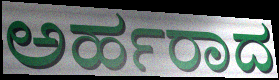
ಅರ್ಹರಾದ